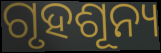
ଗୃହଶୂନ୍ୟ